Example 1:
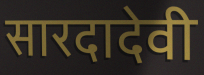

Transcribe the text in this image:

सारदादेवी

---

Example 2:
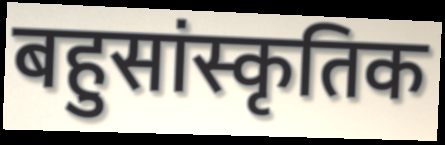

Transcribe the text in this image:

बहुसांस्कृतिक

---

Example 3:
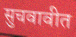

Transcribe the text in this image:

सुचवावीत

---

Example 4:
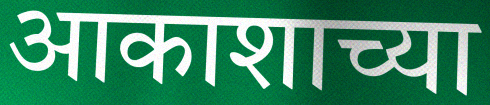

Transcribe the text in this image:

आकाशाच्या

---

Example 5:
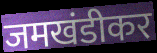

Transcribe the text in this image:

जमखंडीकर